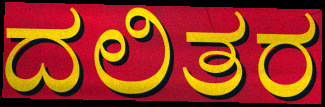
ದಲಿತರ